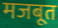
मजबूत